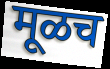
मूळच